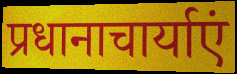
प्रधानाचार्याएं